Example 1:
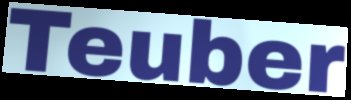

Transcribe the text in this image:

Teuber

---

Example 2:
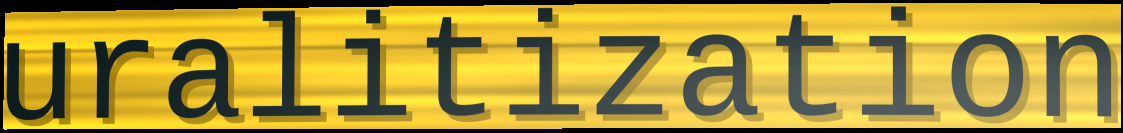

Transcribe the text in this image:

uralitization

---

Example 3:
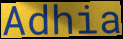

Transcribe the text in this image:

Adhia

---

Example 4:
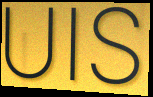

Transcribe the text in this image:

UIS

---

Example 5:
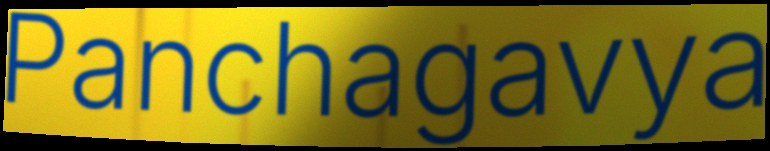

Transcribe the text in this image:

Panchagavya